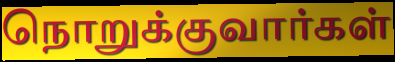
நொறுக்குவார்கள்